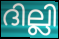
ദില്ലി